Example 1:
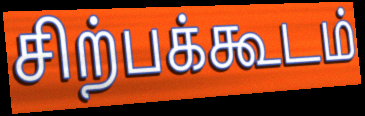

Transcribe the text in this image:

சிற்பக்கூடம்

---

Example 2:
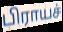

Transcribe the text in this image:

பிராயச்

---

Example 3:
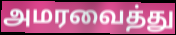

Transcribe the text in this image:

அமரவைத்து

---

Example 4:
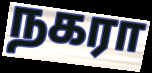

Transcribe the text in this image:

நகரா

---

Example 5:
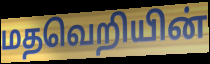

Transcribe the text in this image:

மதவெறியின்